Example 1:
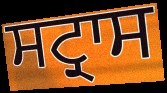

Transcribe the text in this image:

ਸਟ੍ਰਾਸ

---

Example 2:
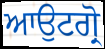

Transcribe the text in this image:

ਆਉਟਗ੍ਰੋ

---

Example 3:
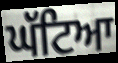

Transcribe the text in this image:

ਘੱਟਿਆ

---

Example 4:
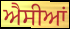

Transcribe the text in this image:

ਐਸੀਆਂ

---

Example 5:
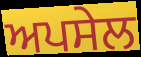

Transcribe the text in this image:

ਅਪਸੇਲ